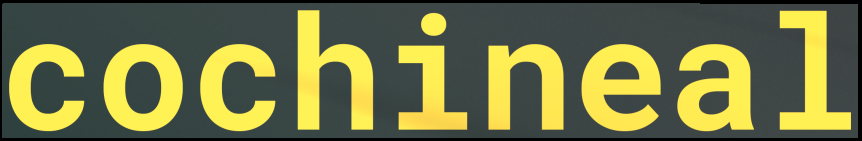
cochineal